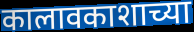
कालावकाशाच्या